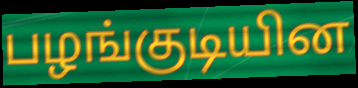
பழங்குடியின